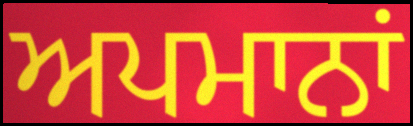
ਅਪਮਾਨਾਂ